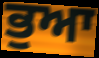
ਭੁਆ